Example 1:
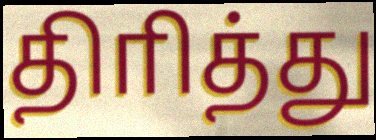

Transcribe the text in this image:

திரித்து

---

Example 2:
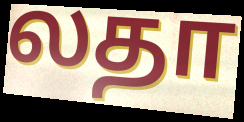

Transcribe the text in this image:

லதா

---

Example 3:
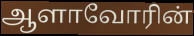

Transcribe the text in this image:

ஆளாவோரின்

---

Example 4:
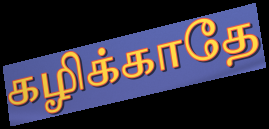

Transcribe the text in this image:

கழிக்காதே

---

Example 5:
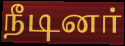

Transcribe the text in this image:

நீடினர்